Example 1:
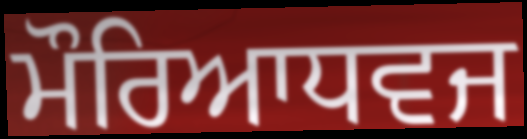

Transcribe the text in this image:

ਮੌਰਿਆਧਵਜ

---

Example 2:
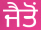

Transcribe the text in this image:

ਜੈਤੋਂ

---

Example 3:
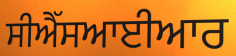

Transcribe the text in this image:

ਸੀਐੱਸਆਈਆਰ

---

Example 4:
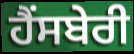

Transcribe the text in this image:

ਹੈਂਸਬੇਰੀ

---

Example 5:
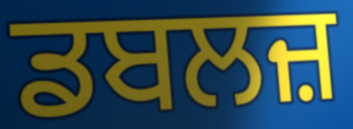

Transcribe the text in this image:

ਡਬਲਜ਼